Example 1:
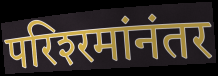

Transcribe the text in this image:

परिश्रमांनंतर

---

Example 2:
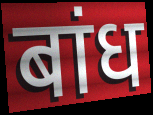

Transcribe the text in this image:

बांध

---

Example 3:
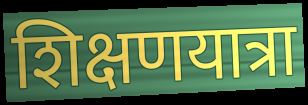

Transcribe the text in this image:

शिक्षणयात्रा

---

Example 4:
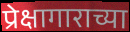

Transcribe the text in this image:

प्रेक्षागाराच्या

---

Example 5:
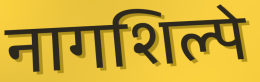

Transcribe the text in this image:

नागशिल्पे